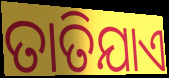
ତାତିଯାଏ